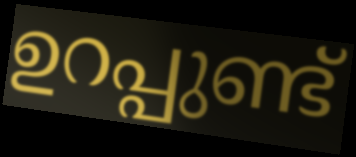
ഉറപ്പുണ്ട്